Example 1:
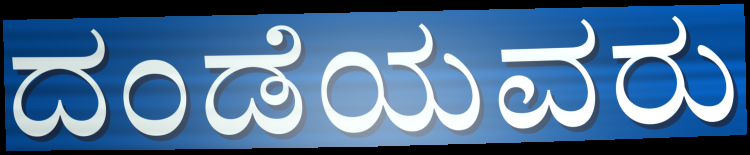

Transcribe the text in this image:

ದಂಡೆಯವರು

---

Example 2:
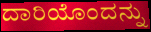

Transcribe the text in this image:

ದಾರಿಯೊಂದನ್ನು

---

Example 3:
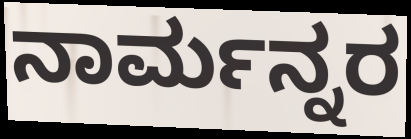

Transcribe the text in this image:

ನಾರ್ಮನ್ನರ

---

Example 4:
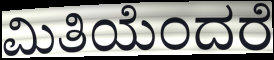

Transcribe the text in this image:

ಮಿತಿಯೆಂದರೆ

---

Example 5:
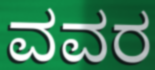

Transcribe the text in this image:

ವವರ